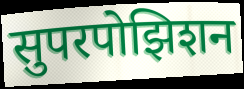
सुपरपोझिशन